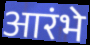
आरंभे